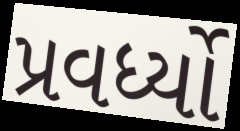
પ્રવર્ધ્યો